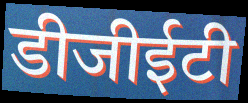
डीजीईटी